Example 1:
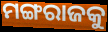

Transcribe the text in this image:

ମଙ୍ଗରାଜକୁ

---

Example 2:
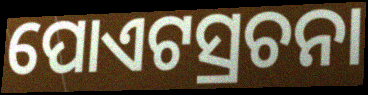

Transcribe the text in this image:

ପୋଏଟସ୍ରଚନା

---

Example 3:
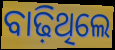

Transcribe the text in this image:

ବାଢ଼ିଥିଲେ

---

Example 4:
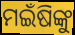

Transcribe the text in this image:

ମଇଁଷିଙ୍କୁ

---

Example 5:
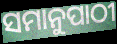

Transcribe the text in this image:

ସମାନୁପାଠୀ